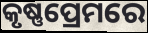
କୃଷ୍ଣପ୍ରେମରେ